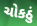
ચોકઠું